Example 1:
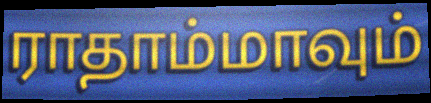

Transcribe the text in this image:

ராதாம்மாவும்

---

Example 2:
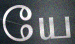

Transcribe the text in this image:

யே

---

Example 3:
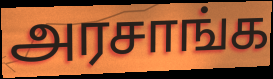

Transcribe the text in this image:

அரசாங்க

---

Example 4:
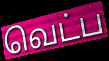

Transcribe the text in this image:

வெட்ப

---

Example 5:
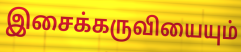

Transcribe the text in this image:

இசைக்கருவியையும்